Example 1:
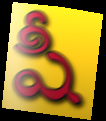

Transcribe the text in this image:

షీ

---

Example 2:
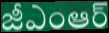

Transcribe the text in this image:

జీఎంఆర్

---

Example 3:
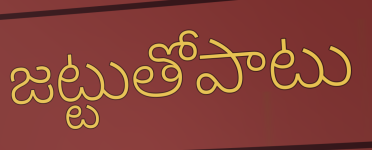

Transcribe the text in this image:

జట్టుతోపాటు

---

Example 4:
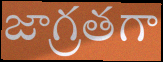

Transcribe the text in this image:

జాగ్రతగా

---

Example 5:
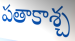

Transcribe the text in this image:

పతాకాశ్చ